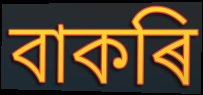
বাকৰি